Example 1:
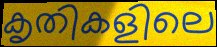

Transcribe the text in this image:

കൃതികളിലെ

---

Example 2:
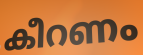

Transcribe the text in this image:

കീറണം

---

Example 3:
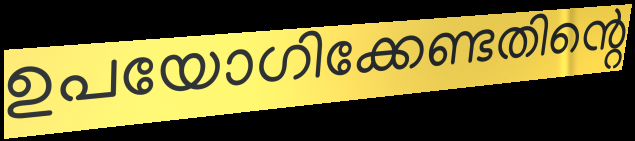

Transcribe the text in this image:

ഉപയോഗിക്കേണ്ടതിന്റെ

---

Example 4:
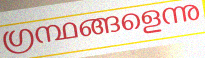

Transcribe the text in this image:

ഗ്രന്ഥങ്ങളെന്നു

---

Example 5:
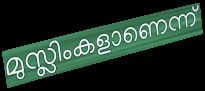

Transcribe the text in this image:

മുസ്ലിംകളാണെന്ന്